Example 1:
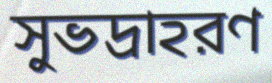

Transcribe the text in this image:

সুভদ্রাহরণ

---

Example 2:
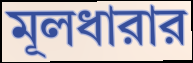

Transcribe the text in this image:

মূলধারার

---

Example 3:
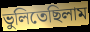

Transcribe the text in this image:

ভুলিতেছিলাম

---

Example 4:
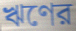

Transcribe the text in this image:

ঋণের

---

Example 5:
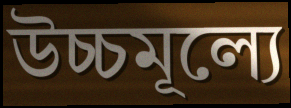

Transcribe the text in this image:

উচ্চমূল্যে